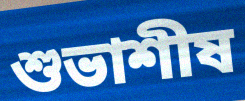
শুভাশীষ